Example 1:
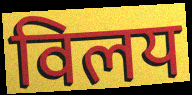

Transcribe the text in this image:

विलय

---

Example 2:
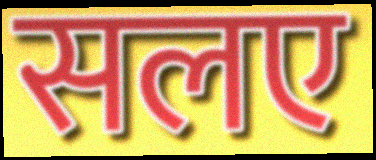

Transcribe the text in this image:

सलए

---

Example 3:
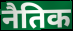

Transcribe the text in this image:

नैतिक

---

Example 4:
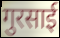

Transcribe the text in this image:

गुरसाई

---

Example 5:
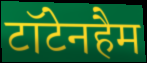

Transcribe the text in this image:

टॉटेनहैम